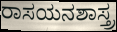
ರಾಸಯನಶಾಸ್ತ್ರ